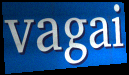
vagai